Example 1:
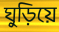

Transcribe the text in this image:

ঘুড়িয়ে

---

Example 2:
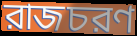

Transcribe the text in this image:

রাজচরণ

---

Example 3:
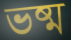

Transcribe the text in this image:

ভষ্ম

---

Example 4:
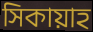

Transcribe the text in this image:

সিকায়াহ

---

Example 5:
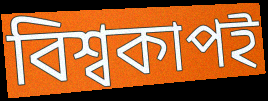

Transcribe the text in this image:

বিশ্বকাপই